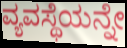
ವ್ಯವಸ್ಥೆಯನ್ನೇ